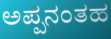
ಅಪ್ಪನಂತಹ